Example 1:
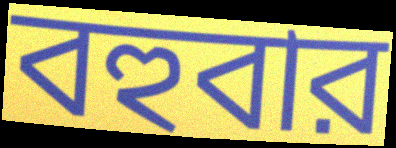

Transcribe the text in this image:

বহুবার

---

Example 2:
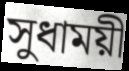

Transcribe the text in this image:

সুধাময়ী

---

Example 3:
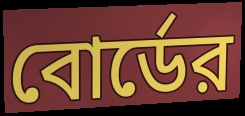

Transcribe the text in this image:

বোর্ডের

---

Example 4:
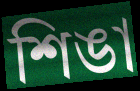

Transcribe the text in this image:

শিঙা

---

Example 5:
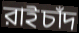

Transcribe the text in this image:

রাইচাঁদ